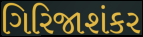
ગિરિજાશંકર